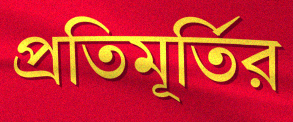
প্রতিমূর্তির